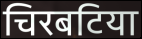
चिरबटिया